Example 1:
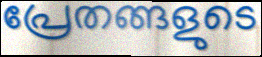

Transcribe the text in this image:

പ്രേതങ്ങളുടെ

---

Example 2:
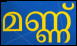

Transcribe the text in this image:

മണ്ണ്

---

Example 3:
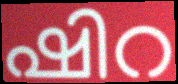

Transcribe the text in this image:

ഷിറ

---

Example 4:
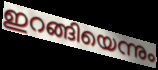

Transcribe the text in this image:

ഇറങ്ങിയെന്നും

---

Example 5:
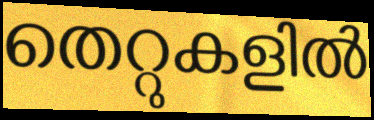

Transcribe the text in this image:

തെറ്റുകളിൽ